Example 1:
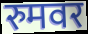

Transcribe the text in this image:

रुमवर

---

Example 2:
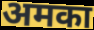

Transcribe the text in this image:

अमका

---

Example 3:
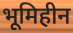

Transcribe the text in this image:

भूमिहीन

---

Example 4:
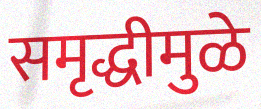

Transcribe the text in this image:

समृद्धीमुळे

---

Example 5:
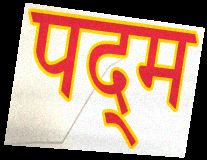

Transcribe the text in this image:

पद्‌म